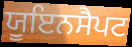
ਯੂਇਨਸੈਪਟ